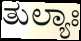
ತುಲ್ಯಾಃ